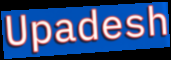
Upadesh